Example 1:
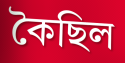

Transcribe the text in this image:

কৈছিল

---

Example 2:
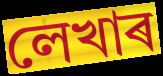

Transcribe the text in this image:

লেখাৰ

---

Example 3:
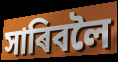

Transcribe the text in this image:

সাৰিবলৈ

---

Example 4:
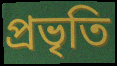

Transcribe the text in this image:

প্ৰভৃতি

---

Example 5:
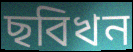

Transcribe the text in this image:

ছবিখন